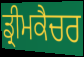
ਡ੍ਰੀਮਕੈਚਰ